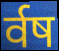
र्वष